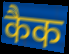
कैक